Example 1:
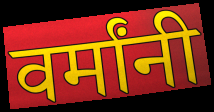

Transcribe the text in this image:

वर्मांनी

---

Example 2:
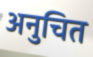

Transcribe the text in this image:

अनुचित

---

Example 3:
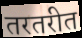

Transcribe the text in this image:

तरतरीत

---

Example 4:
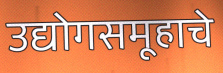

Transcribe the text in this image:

उद्योगसमूहाचे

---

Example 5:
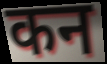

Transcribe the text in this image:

कन